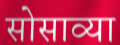
सोसाव्या